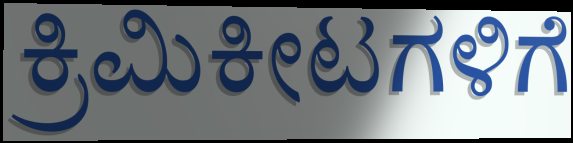
ಕ್ರಿಮಿಕೀಟಗಳಿಗೆ